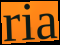
ria